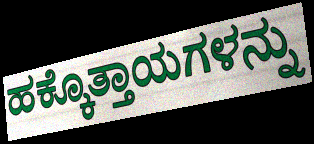
ಹಕ್ಕೊತ್ತಾಯಗಳನ್ನು